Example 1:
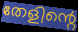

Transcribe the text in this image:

തേളിന്റെ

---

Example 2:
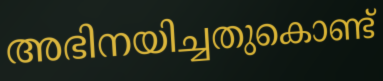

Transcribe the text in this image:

അഭിനയിച്ചതുകൊണ്ട്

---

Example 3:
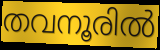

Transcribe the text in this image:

തവനൂരിൽ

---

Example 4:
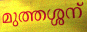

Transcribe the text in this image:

മുത്തശ്ശന്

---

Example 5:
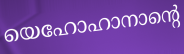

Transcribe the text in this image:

യെഹോഹാനാന്റെ